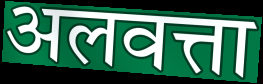
अलवत्ता